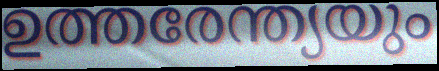
ഉത്തരേന്ത്യയും